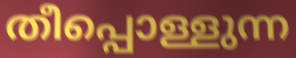
തീപ്പൊള്ളുന്ന